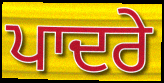
ਪਾਦਰੇ